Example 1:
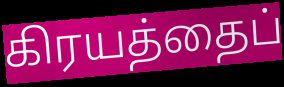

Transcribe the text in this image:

கிரயத்தைப்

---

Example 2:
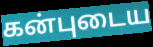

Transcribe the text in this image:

கன்புடைய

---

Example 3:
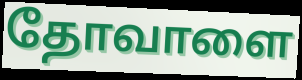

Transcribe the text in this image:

தோவாளை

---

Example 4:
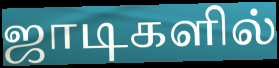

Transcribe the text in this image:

ஜாடிகளில்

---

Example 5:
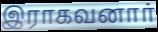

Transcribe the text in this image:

இராகவனார்